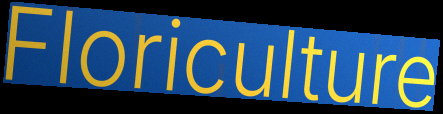
Floriculture